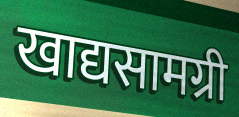
खाद्यसामग्री